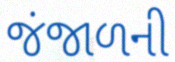
જંજાળની